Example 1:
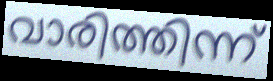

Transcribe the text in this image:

വാരിത്തിന്ന്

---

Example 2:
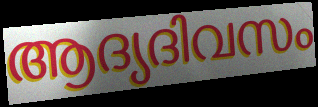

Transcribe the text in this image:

ആദ്യദിവസം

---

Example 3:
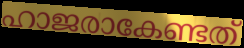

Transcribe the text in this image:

ഹാജരാകേണ്ടത്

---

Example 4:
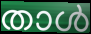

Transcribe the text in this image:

താൾ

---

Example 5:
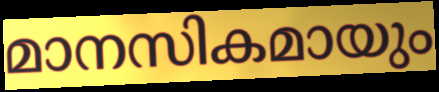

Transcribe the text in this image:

മാനസികമായും